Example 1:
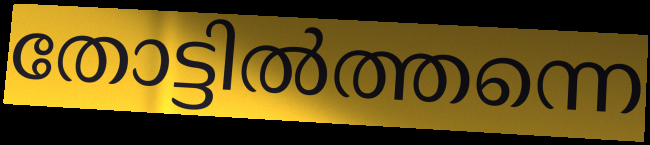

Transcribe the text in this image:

തോട്ടിൽത്തന്നെ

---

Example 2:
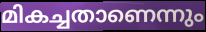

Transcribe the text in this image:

മികച്ചതാണെന്നും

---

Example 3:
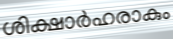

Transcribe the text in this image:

ശിക്ഷാർഹരാകും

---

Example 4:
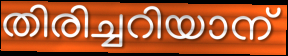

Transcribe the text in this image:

തിരിച്ചറിയാന്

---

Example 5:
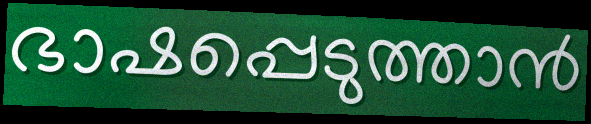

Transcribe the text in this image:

ഭാഷപ്പെടുത്താൻ